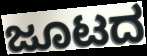
ಜೂಟದ